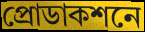
প্রোডাকশনে